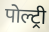
पोल्ट्री